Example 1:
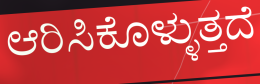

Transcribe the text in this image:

ಆರಿಸಿಕೊಳ್ಳುತ್ತದೆ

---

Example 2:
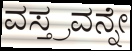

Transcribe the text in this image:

ವಸ್ತ್ರವನ್ನೇ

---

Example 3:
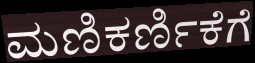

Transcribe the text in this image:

ಮಣಿಕರ್ಣಿಕೆಗೆ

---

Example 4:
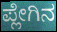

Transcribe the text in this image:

ಪ್ಲೇಗಿನ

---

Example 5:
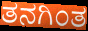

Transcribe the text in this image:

ತನಗಿಂತ